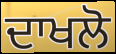
ਦਾਖਲੋ